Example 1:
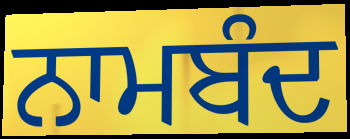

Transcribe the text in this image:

ਨਾਮਬੰਦ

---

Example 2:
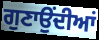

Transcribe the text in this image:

ਗੁਣਾਉਂਦੀਆਂ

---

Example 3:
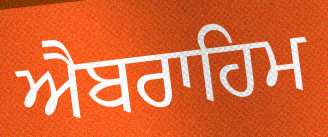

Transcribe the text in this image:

ਐਬਰਾਹਿਮ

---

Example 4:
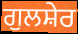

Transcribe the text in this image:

ਗੁਲਸ਼ੇਰ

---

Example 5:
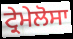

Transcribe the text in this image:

ਟ੍ਰੇਮੇਲੋਸਾ